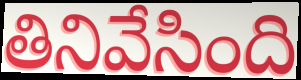
తినివేసింది